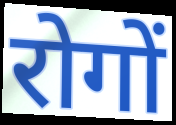
रोगों